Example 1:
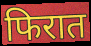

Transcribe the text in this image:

फिरात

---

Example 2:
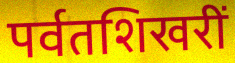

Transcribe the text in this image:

पर्वतशिखरीं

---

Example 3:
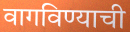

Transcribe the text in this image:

वागविण्याची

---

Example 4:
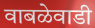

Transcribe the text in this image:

वाबळेवाडी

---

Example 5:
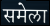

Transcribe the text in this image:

समेला